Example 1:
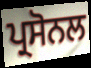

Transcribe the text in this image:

ਪ੍ਰਸੋਨਲ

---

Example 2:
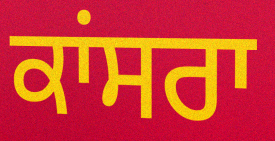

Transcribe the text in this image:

ਕਾਂਸਰਾ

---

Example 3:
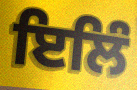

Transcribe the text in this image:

ਇਲਿੰ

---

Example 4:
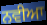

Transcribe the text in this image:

ਨਵੀਆ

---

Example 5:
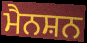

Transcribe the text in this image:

ਮੈਨਸ਼ਨ